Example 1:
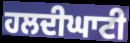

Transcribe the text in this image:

ਹਲਦੀਘਾਟੀ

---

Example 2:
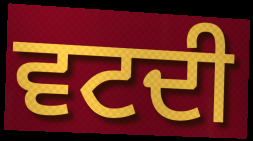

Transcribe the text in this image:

ਵਟਦੀ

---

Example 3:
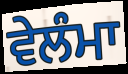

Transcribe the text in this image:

ਵੇਲੰਮਾ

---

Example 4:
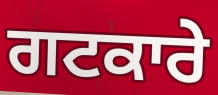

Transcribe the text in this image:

ਗਟਕਾਰੇ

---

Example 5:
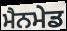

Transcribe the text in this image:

ਮੈਨਮੇਡ